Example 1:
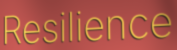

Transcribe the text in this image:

Resilience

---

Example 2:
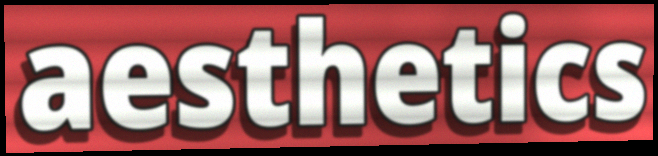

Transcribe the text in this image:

aesthetics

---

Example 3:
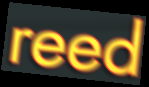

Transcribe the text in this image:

reed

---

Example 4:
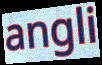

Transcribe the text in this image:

angli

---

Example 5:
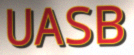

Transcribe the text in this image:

UASB